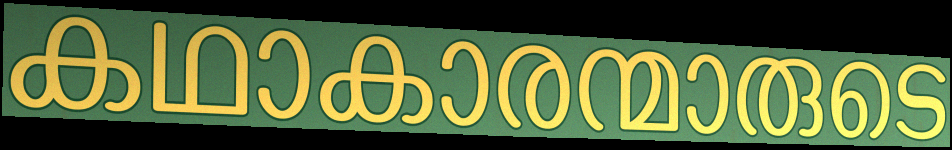
കഥാകാരന്മാരുടെ